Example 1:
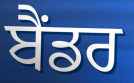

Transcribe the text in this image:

ਬੈਂਡਰ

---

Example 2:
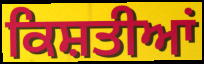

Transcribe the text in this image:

ਕਿਸ਼ਤੀਆਂ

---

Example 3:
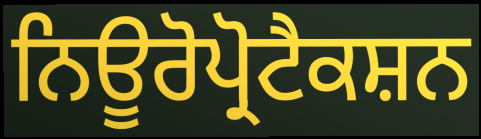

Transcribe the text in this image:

ਨਿਊਰੋਪ੍ਰੋਟੈਕਸ਼ਨ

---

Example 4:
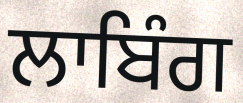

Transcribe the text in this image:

ਲਾਬਿੰਗ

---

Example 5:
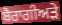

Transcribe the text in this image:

ਬੈਰਾਗੀਅੜੇ